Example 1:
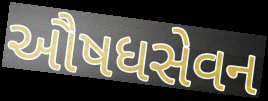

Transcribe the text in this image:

ઔષધસેવન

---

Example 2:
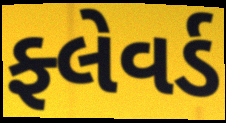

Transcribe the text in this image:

ફ્લેવર્ડ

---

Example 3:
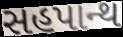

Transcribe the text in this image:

સહપાન્થ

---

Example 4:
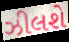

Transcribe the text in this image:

ઝીલશે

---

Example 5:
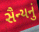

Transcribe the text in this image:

સૈન્યનું